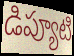
డిప్యూటి